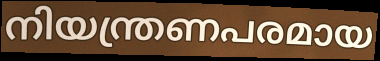
നിയന്ത്രണപരമായ